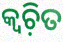
କ୍ୱଚ଼ିତ